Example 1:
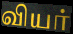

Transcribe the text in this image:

வியர்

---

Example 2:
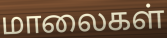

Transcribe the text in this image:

மாலைகள்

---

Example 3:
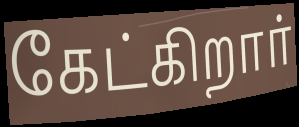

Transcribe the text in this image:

கேட்கிறார்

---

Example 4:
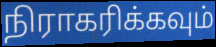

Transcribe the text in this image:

நிராகரிக்கவும்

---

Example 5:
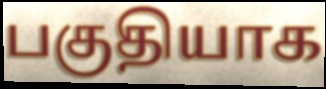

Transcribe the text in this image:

பகுதியாக